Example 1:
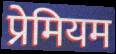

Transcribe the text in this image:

प्रेमियम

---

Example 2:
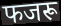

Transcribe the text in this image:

फजरू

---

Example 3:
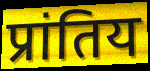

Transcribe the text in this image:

प्रांतिय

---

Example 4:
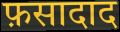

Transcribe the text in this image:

फ़सादाद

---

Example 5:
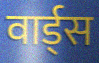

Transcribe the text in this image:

वार्ड्स